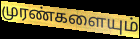
முரண்களையும்